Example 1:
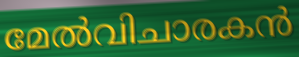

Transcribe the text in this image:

മേൽവിചാരകൻ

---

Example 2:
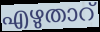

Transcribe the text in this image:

എഴുതാറ്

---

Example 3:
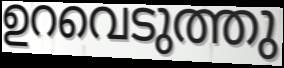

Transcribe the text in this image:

ഉറവെടുത്തു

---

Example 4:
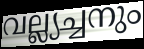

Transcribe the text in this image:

വല്ല്യച്ചനും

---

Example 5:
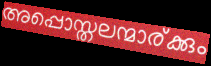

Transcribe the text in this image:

അപ്പൊസ്തലന്മാര്ക്കും